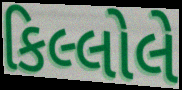
કિલ્લોલે